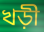
খড়ী